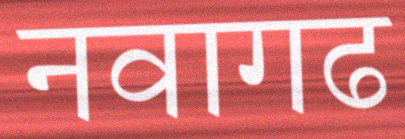
नवागढ